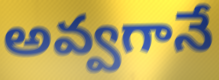
అవ్వగానే